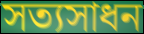
সত্যসাধন